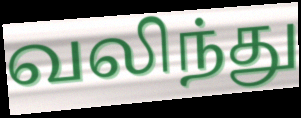
வலிந்து